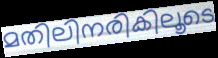
മതിലിനരികിലൂടെ